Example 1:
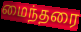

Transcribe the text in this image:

மைந்தரை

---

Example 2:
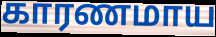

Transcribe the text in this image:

காரணமாய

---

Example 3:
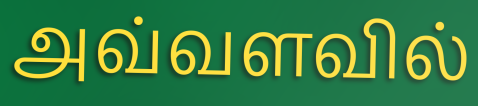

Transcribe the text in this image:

அவ்வளவில்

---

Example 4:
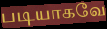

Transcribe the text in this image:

படியாகவே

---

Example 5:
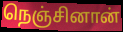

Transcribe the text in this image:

நெஞ்சினான்